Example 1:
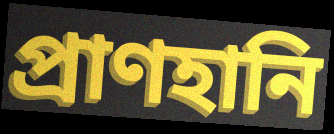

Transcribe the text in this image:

প্রাণহানি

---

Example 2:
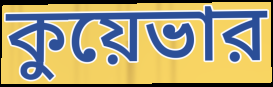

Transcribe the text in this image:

কুয়েভার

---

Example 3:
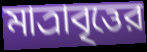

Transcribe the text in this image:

মাত্রাবৃত্তের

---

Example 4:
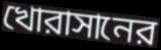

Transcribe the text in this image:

খোরাসানের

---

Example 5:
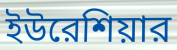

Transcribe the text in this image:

ইউরেশিয়ার